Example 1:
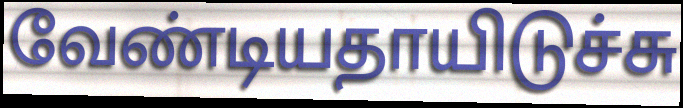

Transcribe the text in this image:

வேண்டியதாயிடுச்சு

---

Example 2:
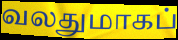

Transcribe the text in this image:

வலதுமாகப்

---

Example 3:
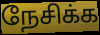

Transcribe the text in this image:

நேசிக்க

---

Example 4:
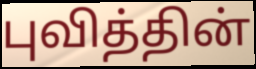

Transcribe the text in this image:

புவித்தின்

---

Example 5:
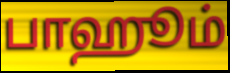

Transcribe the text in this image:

பாஹூம்